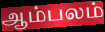
ஆம்பலம்